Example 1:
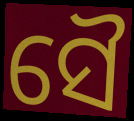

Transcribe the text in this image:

ସୈ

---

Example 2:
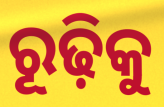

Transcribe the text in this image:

ରୂଢ଼ିକୁ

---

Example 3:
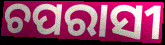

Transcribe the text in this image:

ଚପରାସୀ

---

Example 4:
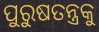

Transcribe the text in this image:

ପୁରୁଷତନ୍ତ୍ରକୁ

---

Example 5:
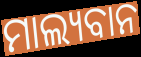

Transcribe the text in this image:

ମାଲ୍ୟବାନ